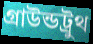
গ্রাউন্ডট্রুথ